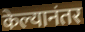
केल्यानंतर